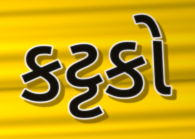
કટ્ટકો